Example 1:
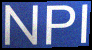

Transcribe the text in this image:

NPI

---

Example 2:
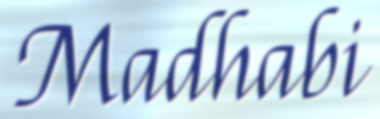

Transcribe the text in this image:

Madhabi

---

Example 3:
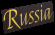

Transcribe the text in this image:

Russia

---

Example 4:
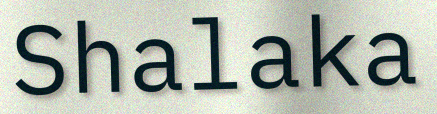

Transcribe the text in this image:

Shalaka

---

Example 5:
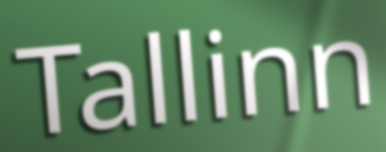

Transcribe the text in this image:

Tallinn